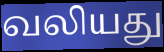
வலியது